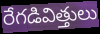
రేగడివిత్తులు